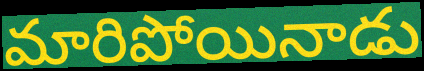
మారిపోయినాడు